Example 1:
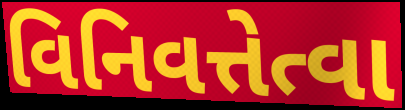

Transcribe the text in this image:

વિનિવત્તેત્વા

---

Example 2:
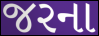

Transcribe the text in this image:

જરના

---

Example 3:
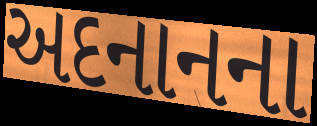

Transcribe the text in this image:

અદનાનના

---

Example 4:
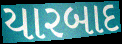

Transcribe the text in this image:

યારબાદ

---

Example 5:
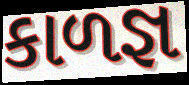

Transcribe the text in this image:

કાળજ્ઞ